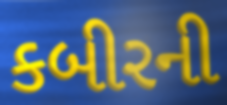
કબીરની